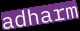
adharm